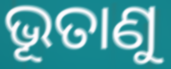
ଭୂତାଣୁ